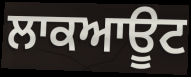
ਲਾਕਆਊਟ